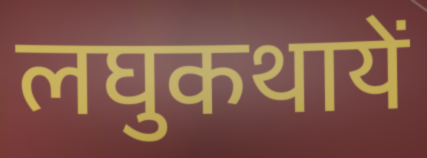
लघुकथायें